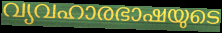
വ്യവഹാരഭാഷയുടെ